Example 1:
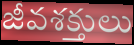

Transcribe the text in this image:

జీవశక్తులు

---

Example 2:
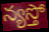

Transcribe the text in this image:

న్యస్తో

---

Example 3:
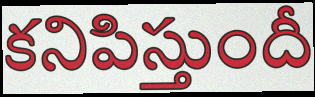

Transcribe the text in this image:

కనిపిస్తుందీ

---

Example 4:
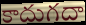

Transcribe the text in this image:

కాదుగదా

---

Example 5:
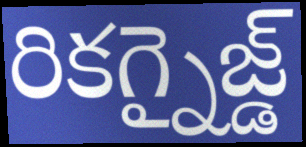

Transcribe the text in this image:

రికగ్నైజ్డ్